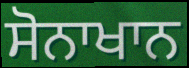
ਸੋਨਾਖਾਨ